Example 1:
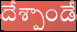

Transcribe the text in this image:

దేశ్పాండే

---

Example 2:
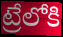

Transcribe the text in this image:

ట్రేలోకి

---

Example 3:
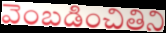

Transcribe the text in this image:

వెంబడించితిని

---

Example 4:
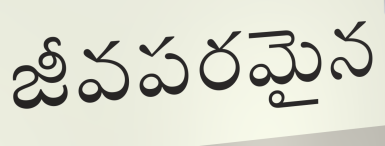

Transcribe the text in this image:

జీవపరమైన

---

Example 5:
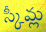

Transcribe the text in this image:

స్కీమ్ల